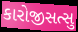
કારોજીસત્સુ